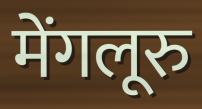
मेंगलूरु